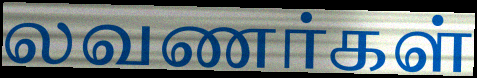
லவணர்கள்